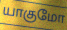
யாகுமோ